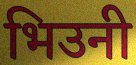
भिउनी